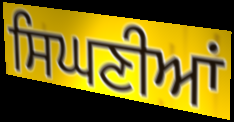
ਸਿਘਣੀਆਂ